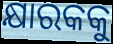
କ୍ଷାରକକୁ